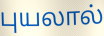
புயலால்